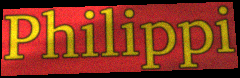
Philippi